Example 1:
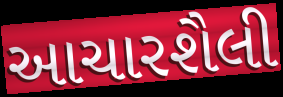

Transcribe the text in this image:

આચારશૈલી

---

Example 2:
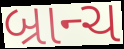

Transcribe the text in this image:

બ્રાન્ચ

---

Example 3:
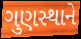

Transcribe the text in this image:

ગુણસ્થાને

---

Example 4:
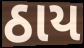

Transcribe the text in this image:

ઠાય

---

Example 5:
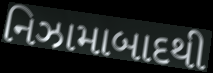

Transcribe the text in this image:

નિઝામાબાદથી